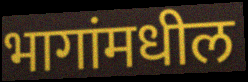
भागांमधील